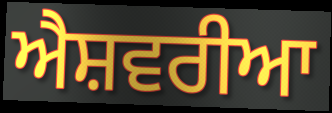
ਐਸ਼ਵਰੀਆ